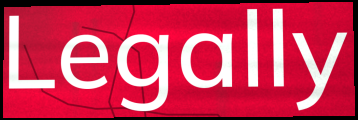
Legally